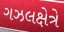
ગઝલક્ષેત્રે